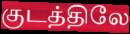
குடத்திலே